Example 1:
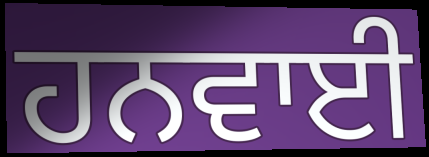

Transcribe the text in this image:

ਹਨਵਾਈ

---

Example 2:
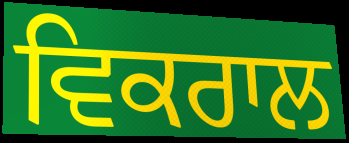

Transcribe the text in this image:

ਵਿਕਰਾਲ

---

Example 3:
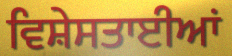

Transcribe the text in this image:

ਵਿਸ਼ੇਸਤਾਈਆਂ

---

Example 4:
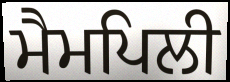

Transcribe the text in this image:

ਮੈਮਪਿਲੀ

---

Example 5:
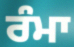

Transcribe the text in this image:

ਰੰਮਾ